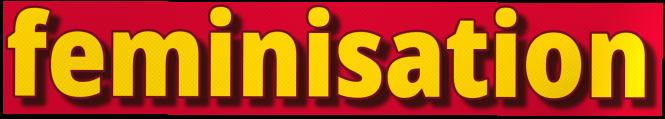
feminisation